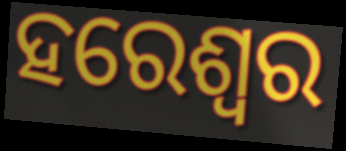
ହରେଶ୍ୱର